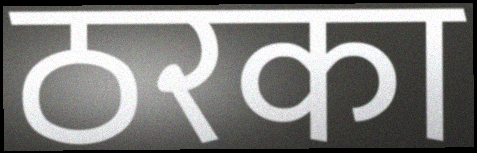
ठरका